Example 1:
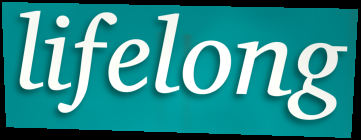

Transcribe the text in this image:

lifelong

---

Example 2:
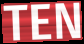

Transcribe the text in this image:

TEN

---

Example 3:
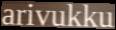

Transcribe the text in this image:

arivukku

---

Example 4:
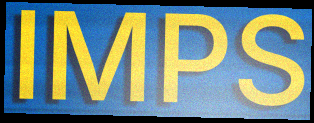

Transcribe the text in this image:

IMPS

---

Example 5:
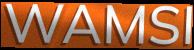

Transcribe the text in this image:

WAMSI